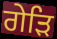
ਗੇੜਿ